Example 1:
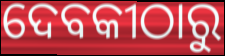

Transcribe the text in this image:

ଦେବକୀଠାରୁ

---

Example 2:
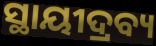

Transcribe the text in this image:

ସ୍ଥାୟୀଦ୍ରବ୍ୟ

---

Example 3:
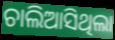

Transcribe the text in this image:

ଚାଲିଆସିଥିଲା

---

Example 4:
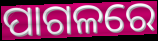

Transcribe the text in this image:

ପାଗଳରେ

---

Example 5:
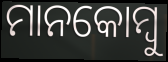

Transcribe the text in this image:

ମାନକୋମ୍ବୁ